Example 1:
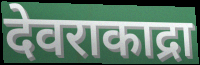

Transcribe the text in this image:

देवराकाद्रा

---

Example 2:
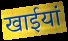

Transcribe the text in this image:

खाईयां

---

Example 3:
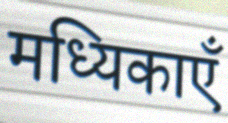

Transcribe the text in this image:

मध्यिकाएँ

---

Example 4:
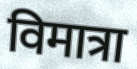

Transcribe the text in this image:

विमात्रा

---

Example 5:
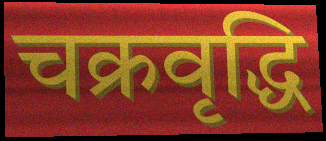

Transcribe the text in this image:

चक्रवृद्धि